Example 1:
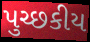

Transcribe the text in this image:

પુચ્છકીય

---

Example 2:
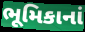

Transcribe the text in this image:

ભૂમિકાનાં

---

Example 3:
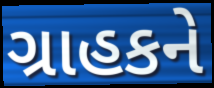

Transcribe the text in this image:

ગ્રાહકને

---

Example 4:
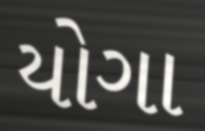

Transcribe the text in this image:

યોગા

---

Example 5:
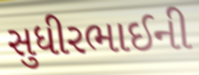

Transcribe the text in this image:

સુધીરભાઈની